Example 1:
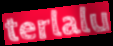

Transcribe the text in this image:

terlalu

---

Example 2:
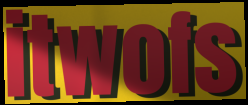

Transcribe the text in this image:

itwofs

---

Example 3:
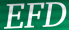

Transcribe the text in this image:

EFD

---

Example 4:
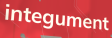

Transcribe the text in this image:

integument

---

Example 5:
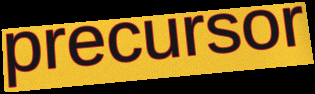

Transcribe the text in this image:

precursor